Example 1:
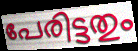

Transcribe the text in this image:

പേരിട്ടതും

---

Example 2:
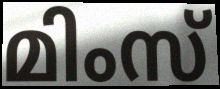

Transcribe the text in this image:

മിംസ്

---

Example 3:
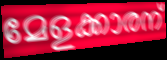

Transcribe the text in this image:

മേളക്കാരന്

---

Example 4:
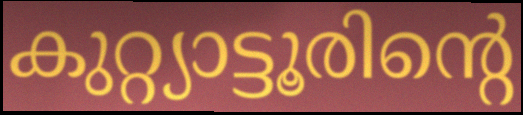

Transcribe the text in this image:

കുറ്റ്യാട്ടൂരിന്റെ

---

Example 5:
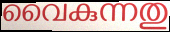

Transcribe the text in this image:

വൈകുന്നതു